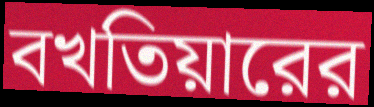
বখতিয়ারের